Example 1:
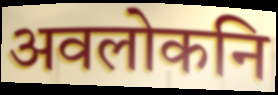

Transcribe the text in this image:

अवलोकनि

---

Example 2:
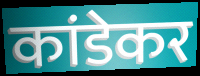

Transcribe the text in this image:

कांडेकर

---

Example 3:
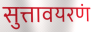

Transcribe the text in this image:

सुत्तावयरणं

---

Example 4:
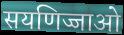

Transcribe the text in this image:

सयणिज्जाओ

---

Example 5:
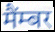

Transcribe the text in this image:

मैंम्बर